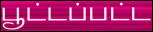
பூட்டப்பட்ட